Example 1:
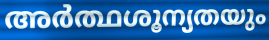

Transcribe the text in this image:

അർത്ഥശൂന്യതയും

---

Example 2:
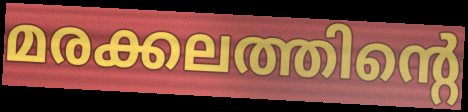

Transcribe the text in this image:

മരക്കലത്തിന്റെ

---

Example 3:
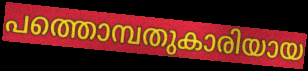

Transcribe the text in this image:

പത്തൊമ്പതുകാരിയായ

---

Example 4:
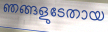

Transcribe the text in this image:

ഞങ്ങളുടേതായ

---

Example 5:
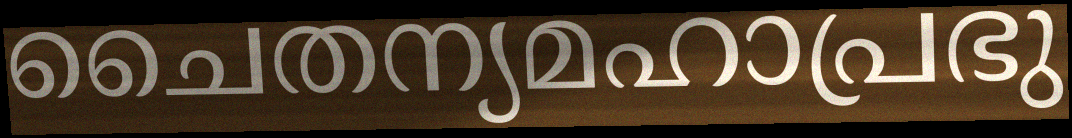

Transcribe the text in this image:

ചൈതന്യമഹാപ്രഭു